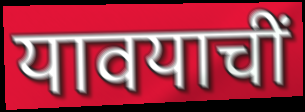
यावयाचीं